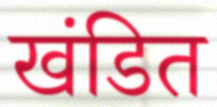
खंडित